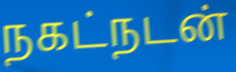
நகட்நடன்